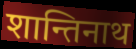
शान्तिनाथ